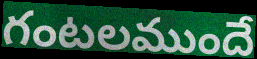
గంటలముందే